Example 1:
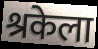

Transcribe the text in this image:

श्रकेला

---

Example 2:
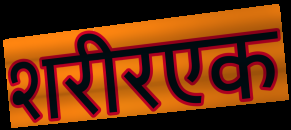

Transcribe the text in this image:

शरीरएक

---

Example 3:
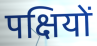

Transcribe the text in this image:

पक्षियों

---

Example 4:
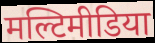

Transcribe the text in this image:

मल्टिमीडिया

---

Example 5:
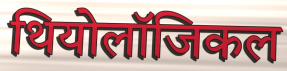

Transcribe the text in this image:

थियोलॉजिकल